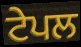
ਟੇਪਲ